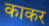
काकर